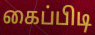
கைப்பிடி